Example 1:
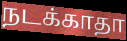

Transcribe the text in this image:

நடக்காதா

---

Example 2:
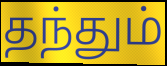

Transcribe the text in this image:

தந்தும்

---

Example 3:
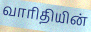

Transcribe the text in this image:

வாரிதியின்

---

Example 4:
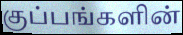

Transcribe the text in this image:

குப்பங்களின்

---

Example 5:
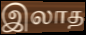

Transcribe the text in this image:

இலாத